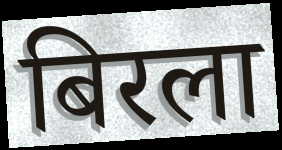
बिरला